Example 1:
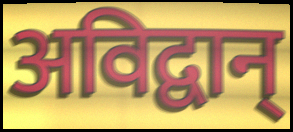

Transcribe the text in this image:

अविद्वान्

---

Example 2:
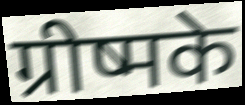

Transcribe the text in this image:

ग्रीष्मके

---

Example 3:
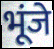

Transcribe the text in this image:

भूंजे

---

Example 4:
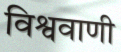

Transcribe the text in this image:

विश्ववाणी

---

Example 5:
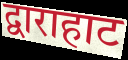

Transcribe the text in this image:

द्वाराहाट